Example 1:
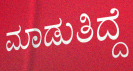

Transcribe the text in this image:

ಮಾಡುತಿದ್ದೆ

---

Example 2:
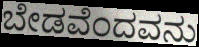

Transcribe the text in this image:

ಬೇಡವೆಂದವನು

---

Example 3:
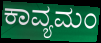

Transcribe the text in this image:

ಕಾವ್ಯಮಂ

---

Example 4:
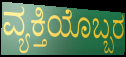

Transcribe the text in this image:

ವ್ಯಕ್ತಿಯೊಬ್ಬರ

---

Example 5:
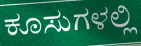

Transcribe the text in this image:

ಕೂಸುಗಳಲ್ಲಿ